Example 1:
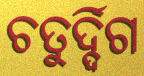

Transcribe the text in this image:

ଚତୁର୍ଦ୍ଦିଗ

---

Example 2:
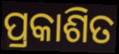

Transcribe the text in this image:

ପ୍ରକାଶିତ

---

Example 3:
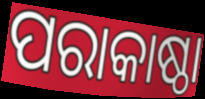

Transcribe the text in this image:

ପରାକାଷ୍ଠା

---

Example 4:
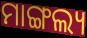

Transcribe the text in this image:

ମାଙ୍ଗଲ୍ୟ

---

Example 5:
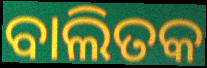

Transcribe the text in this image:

ବାଲିତକ